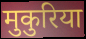
मुकुरिया